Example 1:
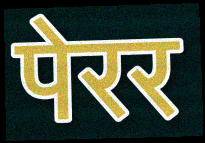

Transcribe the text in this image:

पेरर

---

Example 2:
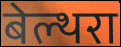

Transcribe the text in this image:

बेल्थरा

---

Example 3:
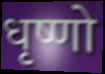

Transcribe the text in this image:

धृष्णो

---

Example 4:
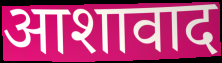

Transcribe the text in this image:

आशावाद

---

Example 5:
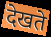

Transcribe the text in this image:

देखते